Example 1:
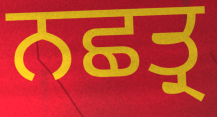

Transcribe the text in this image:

ਨਛਤ੍ਰ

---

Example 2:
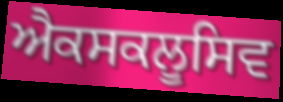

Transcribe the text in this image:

ਐਕਸਕਲੂਸਿਵ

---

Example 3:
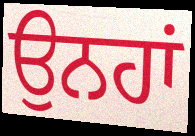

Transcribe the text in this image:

ਉਨਹਾਂ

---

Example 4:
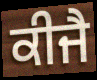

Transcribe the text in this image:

ਕੀਜੈ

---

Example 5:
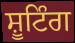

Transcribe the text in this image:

ਸ਼ੂਟਿੰਗ